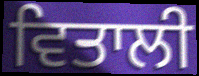
ਵਿਤਾਲੀ